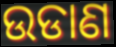
ଉଡାଣ